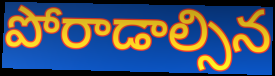
పోరాడాల్సిన